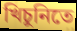
খিচুনিতে